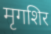
मृगशिर